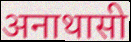
अनाथासी